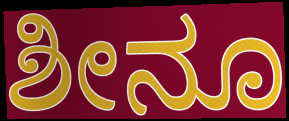
ಶೀನೂ